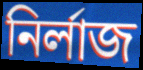
নির্লাজ